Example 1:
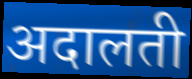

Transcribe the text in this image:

अदालती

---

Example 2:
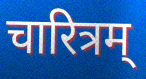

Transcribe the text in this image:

चारित्रम्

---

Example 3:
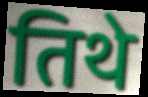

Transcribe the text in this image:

तिथे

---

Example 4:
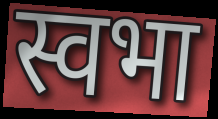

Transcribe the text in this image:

स्वभा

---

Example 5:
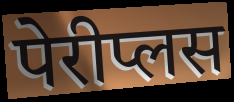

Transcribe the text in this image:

पेरीप्लस